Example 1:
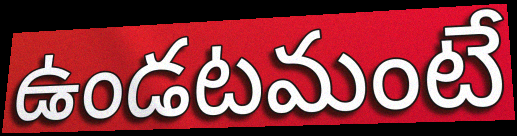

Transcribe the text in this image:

ఉండటమంటే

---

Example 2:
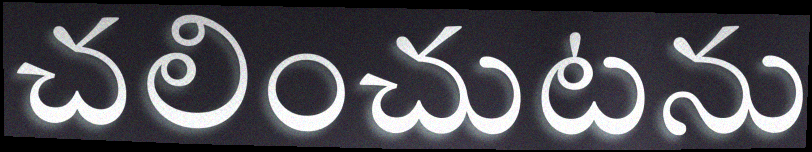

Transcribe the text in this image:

చలించుటను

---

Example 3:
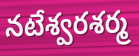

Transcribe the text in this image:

నటేశ్వరశర్మ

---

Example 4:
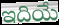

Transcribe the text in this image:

ఇదియే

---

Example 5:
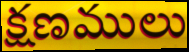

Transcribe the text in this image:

క్షణములు